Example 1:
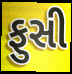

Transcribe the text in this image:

ફુસી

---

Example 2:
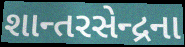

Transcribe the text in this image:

શાન્તરસેન્દ્રના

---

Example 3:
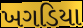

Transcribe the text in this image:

ખગડિયા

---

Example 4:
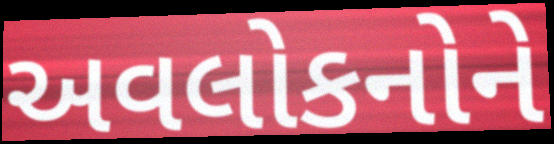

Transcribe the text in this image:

અવલોકનોને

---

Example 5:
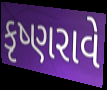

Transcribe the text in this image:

કૃષ્ણરાવે